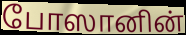
போஸானின்